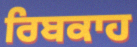
ਰਿਬਕਾਹ